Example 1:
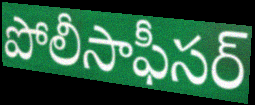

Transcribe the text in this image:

పోలీసాఫీసర్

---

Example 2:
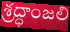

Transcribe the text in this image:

శ్రద్ధాంజలి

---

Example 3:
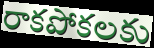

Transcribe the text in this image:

రాకపోకలకు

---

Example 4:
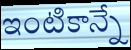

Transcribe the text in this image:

ఇంటికాన్నే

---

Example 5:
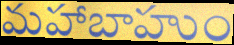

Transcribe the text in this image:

మహాబాహుం